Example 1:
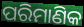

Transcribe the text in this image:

ପରିମାଣିକ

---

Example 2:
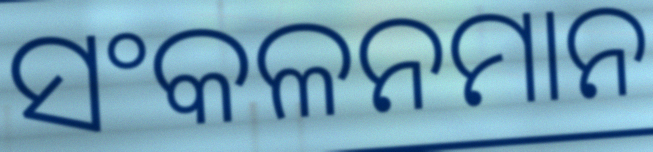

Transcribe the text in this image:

ସଂକଳନମାନ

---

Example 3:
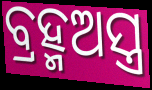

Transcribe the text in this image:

ବ୍ରହ୍ମଅସ୍ତ୍ର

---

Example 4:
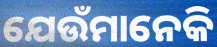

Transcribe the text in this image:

ଯେଉଁମାନେକି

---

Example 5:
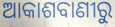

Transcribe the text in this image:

ଆକାଶବାଣୀରୁ